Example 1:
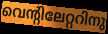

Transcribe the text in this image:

വെന്റിലേറ്ററിനു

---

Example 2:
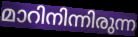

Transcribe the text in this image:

മാറിനിന്നിരുന്ന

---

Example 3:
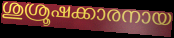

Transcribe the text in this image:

ശുശ്രൂഷക്കാരനായ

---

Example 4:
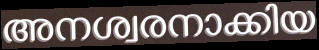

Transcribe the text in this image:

അനശ്വരനാക്കിയ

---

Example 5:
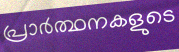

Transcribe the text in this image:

പ്രാർത്ഥനകളുടെ